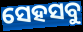
ସେହସବୁ